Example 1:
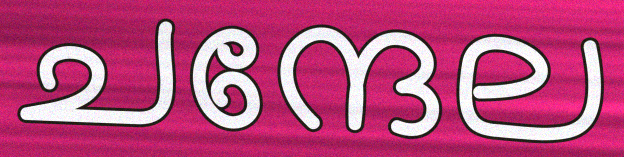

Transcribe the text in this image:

ചന്ദേല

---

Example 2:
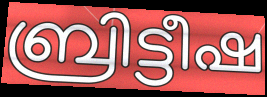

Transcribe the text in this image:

ബ്രിട്ടീഷ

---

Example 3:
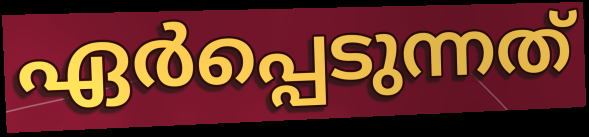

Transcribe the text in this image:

ഏർപ്പെടുന്നത്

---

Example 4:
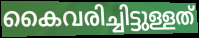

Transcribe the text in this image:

കൈവരിച്ചിട്ടുള്ളത്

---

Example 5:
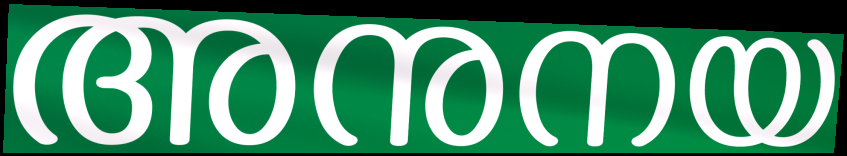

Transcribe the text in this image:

അനുനയ